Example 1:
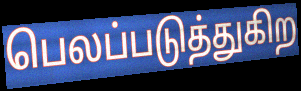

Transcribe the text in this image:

பெலப்படுத்துகிற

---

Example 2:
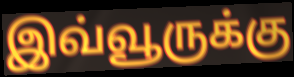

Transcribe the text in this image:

இவ்வூருக்கு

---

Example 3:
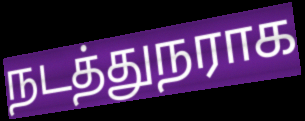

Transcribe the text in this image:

நடத்துநராக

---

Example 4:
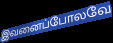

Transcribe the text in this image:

இவனைப்போலவே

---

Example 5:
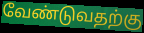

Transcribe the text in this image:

வேண்டுவதற்கு